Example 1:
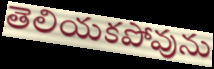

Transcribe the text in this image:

తెలియకపోవును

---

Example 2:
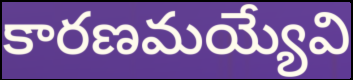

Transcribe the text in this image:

కారణమయ్యేవి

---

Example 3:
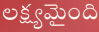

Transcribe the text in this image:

లక్ష్యమైంది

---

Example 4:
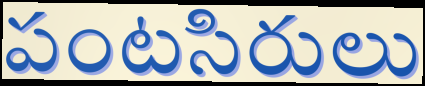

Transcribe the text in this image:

పంటసిరులు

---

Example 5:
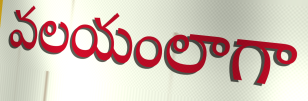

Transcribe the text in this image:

వలయంలాగా